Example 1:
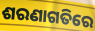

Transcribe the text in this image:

ଶରଣାଗତିରେ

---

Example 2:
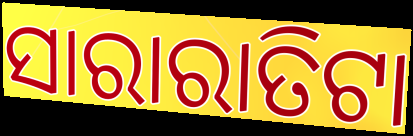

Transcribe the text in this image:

ସାରାରାତିଟା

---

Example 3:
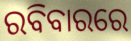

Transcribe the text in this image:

ରବିବାରରେ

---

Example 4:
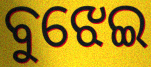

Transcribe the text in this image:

ବୁଝେଇ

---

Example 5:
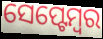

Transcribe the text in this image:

ସେପ୍ଟେମ୍ୱର